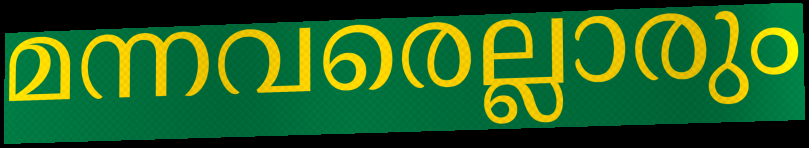
മന്നവരെല്ലാരും